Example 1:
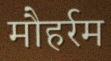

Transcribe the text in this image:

मौहर्रम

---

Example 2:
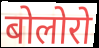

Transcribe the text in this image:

बोलोरो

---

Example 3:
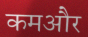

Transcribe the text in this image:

कमऔर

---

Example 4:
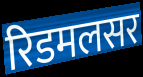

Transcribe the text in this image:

रिडमलसर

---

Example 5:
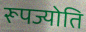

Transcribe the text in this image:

रूपज्योति